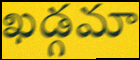
ఖడ్గమా